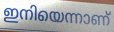
ഇനിയെന്നാണ്